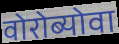
वोरोब्योवा